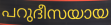
പറുദീസയായ